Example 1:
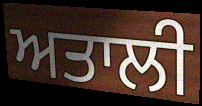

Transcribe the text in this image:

ਅਤਾਲੀ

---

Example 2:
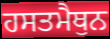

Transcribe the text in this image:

ਹਸਤਮੈਥੁਨ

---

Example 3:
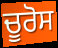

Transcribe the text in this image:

ਚੂਰੋਸ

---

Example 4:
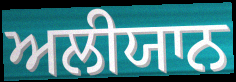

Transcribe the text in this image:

ਅਲੀਯਾਨ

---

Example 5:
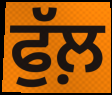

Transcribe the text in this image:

ਫੁੱਲ਼